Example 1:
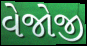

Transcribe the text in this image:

વેજોજી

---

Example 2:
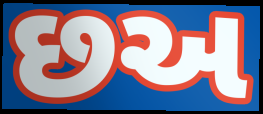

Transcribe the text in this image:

છઅ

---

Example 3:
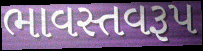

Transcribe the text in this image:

ભાવસ્તવરૂપ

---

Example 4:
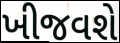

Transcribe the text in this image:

ખીજવશે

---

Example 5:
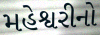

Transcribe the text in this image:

મહેશ્વરીનો